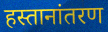
हस्तानांतरण